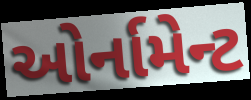
ઓર્નામેન્ટ